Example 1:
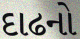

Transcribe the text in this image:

દાઢનો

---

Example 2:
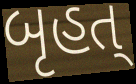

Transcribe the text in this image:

બૃહત્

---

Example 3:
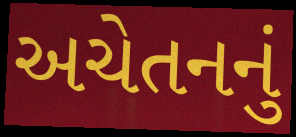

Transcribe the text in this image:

અચેતનનું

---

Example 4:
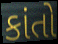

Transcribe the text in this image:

કાંતો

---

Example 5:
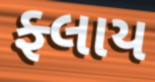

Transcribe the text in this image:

ફ્લાય